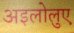
अइलोलुए